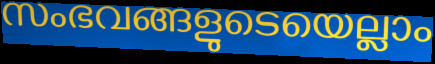
സംഭവങ്ങളുടെയെല്ലാം